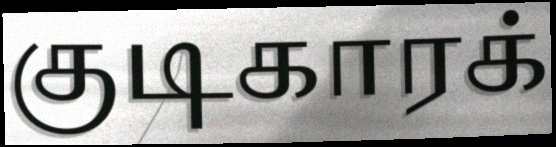
குடிகாரக்